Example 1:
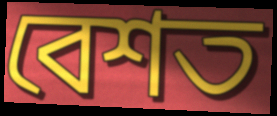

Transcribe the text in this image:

বেশত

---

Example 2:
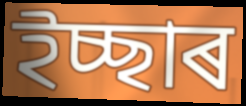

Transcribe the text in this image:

ইচ্ছাৰ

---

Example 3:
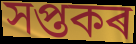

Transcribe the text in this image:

সপ্তকৰ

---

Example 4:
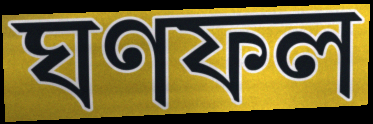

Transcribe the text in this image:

ঘণফল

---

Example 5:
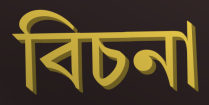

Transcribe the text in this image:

বিচনা